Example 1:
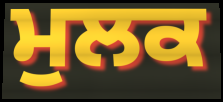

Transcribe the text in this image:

ਮੁਲਕ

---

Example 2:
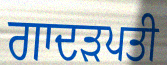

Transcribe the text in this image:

ਗਾਦੜਪਤੀ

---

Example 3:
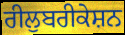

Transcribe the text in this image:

ਰੀਲੁਬਰੀਕੇਸ਼ਨ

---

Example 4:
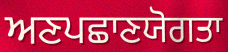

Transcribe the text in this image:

ਅਣਪਛਾਣਯੋਗਤਾ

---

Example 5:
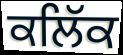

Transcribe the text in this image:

ਕਲਿੱਕ